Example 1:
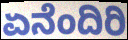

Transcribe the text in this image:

ಏನೆಂದಿರಿ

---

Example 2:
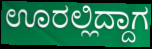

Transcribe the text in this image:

ಊರಲ್ಲಿದ್ದಾಗ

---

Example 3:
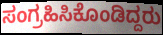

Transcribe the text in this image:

ಸಂಗ್ರಹಿಸಿಕೊಂಡಿದ್ದರು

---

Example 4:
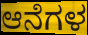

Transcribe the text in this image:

ಆನೆಗಳ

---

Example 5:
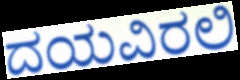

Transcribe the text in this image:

ದಯವಿರಲಿ